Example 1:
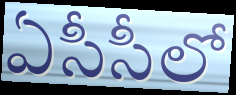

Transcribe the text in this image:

ఏసీసీలో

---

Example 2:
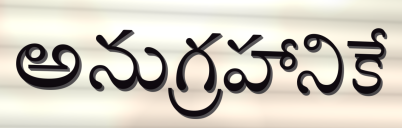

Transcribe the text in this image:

అనుగ్రహానికే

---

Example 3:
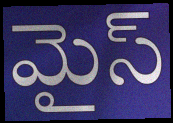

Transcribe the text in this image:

మైస్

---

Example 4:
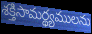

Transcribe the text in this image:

శక్తిసామర్థ్యములను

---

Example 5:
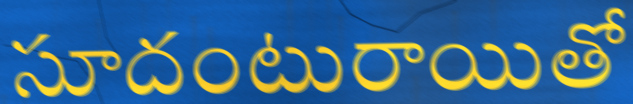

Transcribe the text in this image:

సూదంటురాయితో